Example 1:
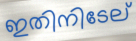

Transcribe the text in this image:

ഇതിനിടേല്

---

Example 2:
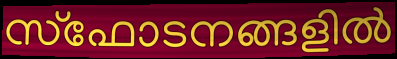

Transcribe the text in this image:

സ്ഫോടനങ്ങളിൽ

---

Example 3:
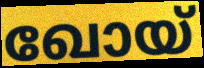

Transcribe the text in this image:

ഖോയ്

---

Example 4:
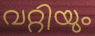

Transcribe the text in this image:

വറ്റിയും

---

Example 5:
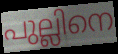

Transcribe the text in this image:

പുല്ലിനെ